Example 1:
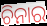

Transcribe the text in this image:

ଚିନାର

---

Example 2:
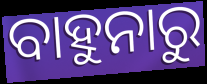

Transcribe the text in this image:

ବାହୁନାରୁ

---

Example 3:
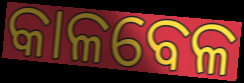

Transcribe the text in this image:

କାଳବେଳ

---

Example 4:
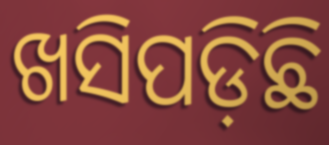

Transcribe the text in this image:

ଖସିପଡ଼ିଛି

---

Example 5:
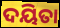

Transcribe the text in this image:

ଦୟିତା